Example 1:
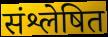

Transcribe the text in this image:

संश्लेषित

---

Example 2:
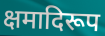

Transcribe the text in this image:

क्षमादिरूप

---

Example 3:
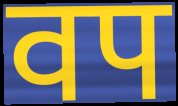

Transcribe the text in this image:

वप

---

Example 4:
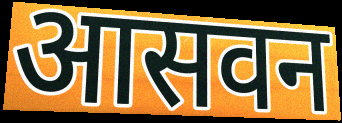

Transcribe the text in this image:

आसवन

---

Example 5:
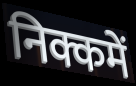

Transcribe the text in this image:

निक्कमें